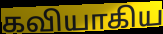
கவியாகிய